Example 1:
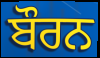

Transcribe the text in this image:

ਬੌਰਨ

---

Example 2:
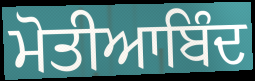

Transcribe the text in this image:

ਮੋਤੀਆਬਿੰਦ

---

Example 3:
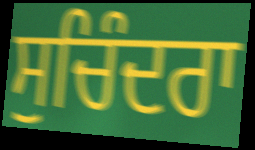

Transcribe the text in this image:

ਸੁਚਿੰਦਰਾ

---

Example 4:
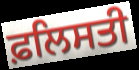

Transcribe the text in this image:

ਫ਼ਲਿਸਤੀ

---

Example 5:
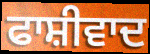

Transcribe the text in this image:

ਫਾਸ਼ੀਵਾਦ